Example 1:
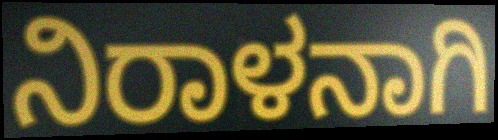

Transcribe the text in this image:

ನಿರಾಳನಾಗಿ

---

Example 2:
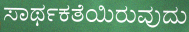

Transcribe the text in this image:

ಸಾರ್ಥಕತೆಯಿರುವುದು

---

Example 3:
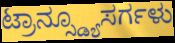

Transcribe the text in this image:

ಟ್ರಾನ್ಸ್ಡ್ಯೂಸರ್ಗಳು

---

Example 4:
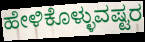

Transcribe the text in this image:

ಹೇಳಿಕೊಳ್ಳುವಷ್ಟರ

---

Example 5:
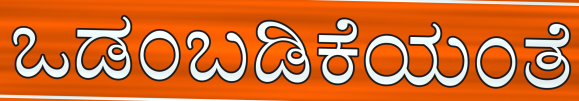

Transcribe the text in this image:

ಒಡಂಬಡಿಕೆಯಂತೆ